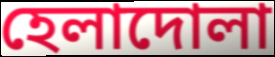
হেলাদোলা